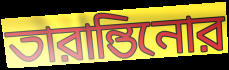
তারান্তিনোর